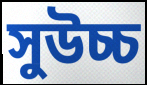
সুউচ্চ